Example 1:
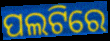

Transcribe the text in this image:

ପଲଟିରେ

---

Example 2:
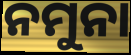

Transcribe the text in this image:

ନମୁନା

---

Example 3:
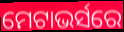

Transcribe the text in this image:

ମେଟାଭର୍ସରେ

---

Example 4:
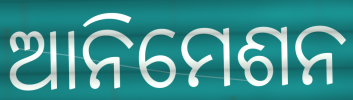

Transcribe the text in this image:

ଆନିମେଶନ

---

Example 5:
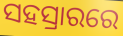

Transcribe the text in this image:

ସହସ୍ରାରରେ